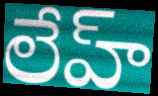
లేహ్